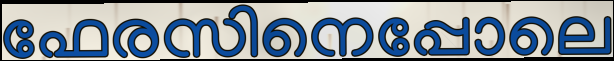
ഫേരസിനെപ്പോലെ